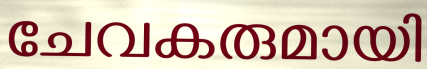
ചേവകരുമായി